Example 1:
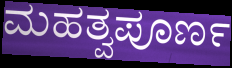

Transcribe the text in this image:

ಮಹತ್ವಪೂರ್ಣ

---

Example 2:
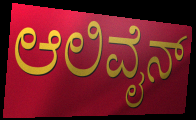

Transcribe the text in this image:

ಆಲಿವೈನ್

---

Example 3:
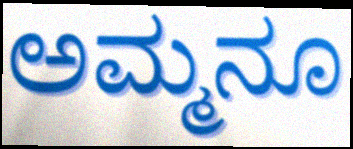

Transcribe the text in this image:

ಅಮ್ಮನೂ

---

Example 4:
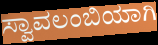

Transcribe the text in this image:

ಸ್ವಾವಲಂಬಿಯಾಗಿ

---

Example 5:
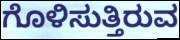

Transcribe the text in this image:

ಗೊಳಿಸುತ್ತಿರುವ